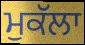
ਮੁਕੱਲਾ